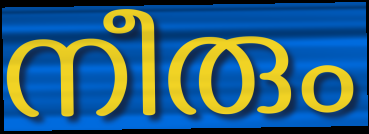
നീരും